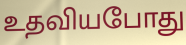
உதவியபோது